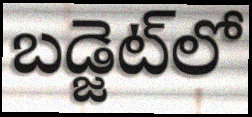
బడ్జెట్‌లో